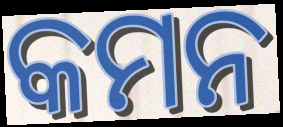
କମନ